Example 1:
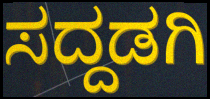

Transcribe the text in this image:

ಸದ್ದಡಗಿ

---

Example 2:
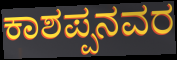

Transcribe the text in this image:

ಕಾಶಪ್ಪನವರ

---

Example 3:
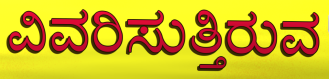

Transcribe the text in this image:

ವಿವರಿಸುತ್ತಿರುವ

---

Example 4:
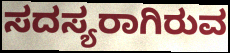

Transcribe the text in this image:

ಸದಸ್ಯರಾಗಿರುವ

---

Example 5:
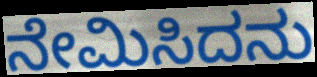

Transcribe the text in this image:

ನೇಮಿಸಿದನು